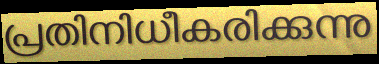
പ്രതിനിധീകരിക്കുന്നു